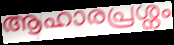
ആഹാരപ്രശ്നം